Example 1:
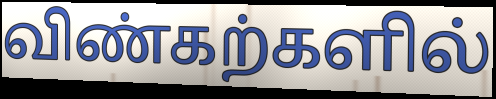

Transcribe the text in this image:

விண்கற்களில்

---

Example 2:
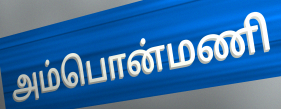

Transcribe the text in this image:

அம்பொன்மணி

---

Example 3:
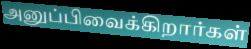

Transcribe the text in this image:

அனுப்பிவைக்கிறார்கள்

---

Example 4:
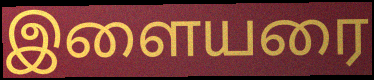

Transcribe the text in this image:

இளையரை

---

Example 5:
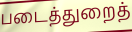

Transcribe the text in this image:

படைத்துறைத்